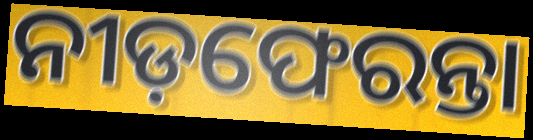
ନୀଡ଼ଫେରନ୍ତା